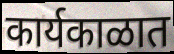
कार्यकाळात